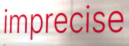
imprecise